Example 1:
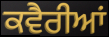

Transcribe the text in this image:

ਕਵੈਰੀਆਂ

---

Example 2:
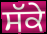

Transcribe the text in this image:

ਸੱਕੇ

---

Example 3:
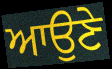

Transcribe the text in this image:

ਆਉਣੇ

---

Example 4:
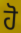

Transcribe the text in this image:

ਹੋ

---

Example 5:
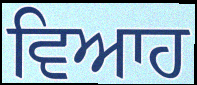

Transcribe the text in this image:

ਵਿਆਹ